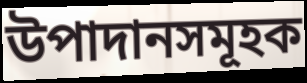
উপাদানসমূহক